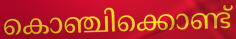
കൊഞ്ചിക്കൊണ്ട്